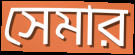
সেমার